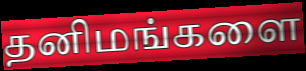
தனிமங்களை